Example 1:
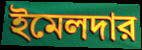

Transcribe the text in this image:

ইমেলদার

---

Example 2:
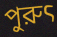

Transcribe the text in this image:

পুরুৎ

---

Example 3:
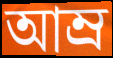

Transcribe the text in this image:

আম্র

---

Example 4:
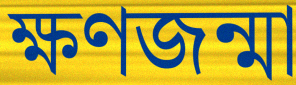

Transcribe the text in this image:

ক্ষণজন্মা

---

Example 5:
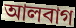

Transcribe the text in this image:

আলবাগ